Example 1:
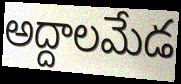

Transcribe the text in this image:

అద్దాలమేడ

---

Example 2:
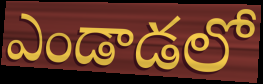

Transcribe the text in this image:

ఎండాడలో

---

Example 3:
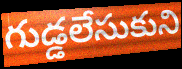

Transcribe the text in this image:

గుడ్డలేసుకుని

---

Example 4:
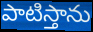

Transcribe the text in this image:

పాటిస్తాను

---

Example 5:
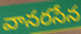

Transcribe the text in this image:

వానరసేన